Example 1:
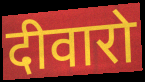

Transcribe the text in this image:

दीवारो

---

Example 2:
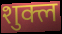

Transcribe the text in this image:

शुक्ल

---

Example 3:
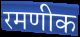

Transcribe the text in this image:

रमणीक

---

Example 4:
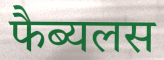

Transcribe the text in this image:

फैब्यलस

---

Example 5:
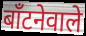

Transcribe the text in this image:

बाँटनेवाले